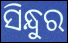
ସିନ୍ଧୁର